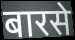
बारसे